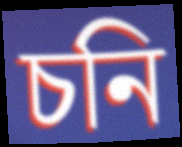
চনি